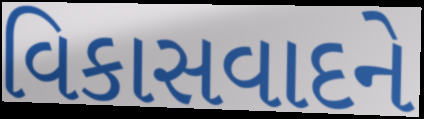
વિકાસવાદને